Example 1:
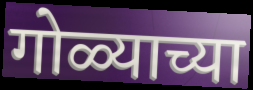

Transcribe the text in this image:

गोळ्याच्या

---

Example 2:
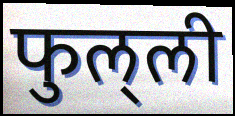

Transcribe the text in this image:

फुल्ली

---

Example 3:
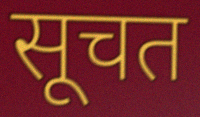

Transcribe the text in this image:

सूचत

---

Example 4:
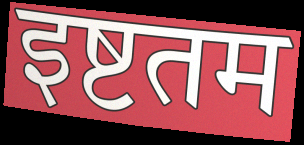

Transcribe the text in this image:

इष्टतम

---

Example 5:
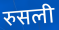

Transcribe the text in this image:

रुसली